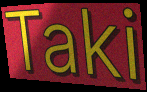
Taki